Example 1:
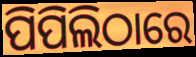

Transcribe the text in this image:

ପିପିଲିଠାରେ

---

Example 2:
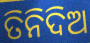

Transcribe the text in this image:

ତିନିଦିଅ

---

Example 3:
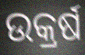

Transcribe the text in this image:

ଉକ୍ରର୍ଷ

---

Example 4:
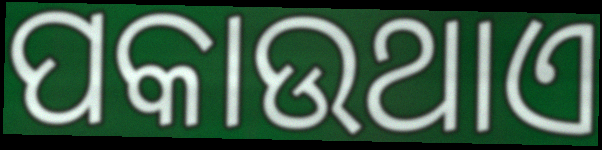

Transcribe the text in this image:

ପକାଉଥାଏ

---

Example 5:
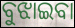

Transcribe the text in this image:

ବୁଝାଇବା